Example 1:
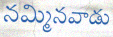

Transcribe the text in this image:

నమ్మినవాడు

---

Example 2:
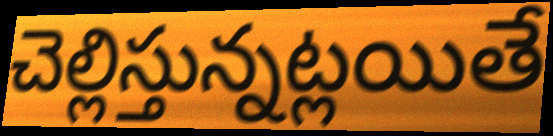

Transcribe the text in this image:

చెల్లిస్తున్నట్లయితే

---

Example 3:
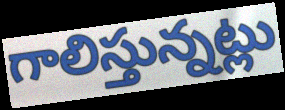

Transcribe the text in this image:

గాలిస్తున్నట్లు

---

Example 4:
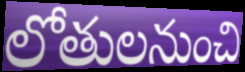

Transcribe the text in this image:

లోతులనుంచి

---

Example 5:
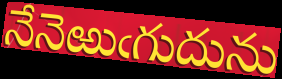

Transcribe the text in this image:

నేనెఱుఁగుదును